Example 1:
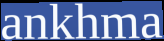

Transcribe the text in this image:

ankhma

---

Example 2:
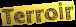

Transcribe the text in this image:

Terroir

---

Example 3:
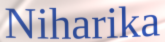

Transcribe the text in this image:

Niharika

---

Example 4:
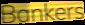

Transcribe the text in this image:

Bankers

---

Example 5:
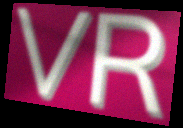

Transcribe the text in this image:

VR